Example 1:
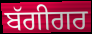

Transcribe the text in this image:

ਬੱਗੀਗਰ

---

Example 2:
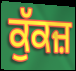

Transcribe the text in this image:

ਕੁੱਕਜ਼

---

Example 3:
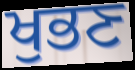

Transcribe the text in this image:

ਖੁਭਣ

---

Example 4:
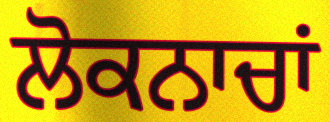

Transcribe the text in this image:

ਲੋਕਨਾਚਾਂ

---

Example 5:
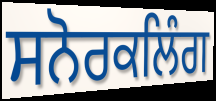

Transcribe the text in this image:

ਸਨੋਰਕਲਿੰਗ